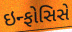
ઇન્ફોસિસે